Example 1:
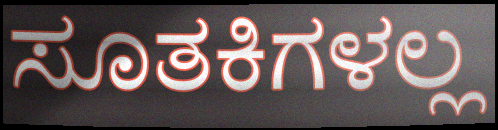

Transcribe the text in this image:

ಸೂತಕಿಗಳಲ್ಲ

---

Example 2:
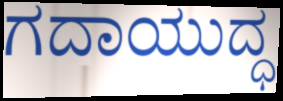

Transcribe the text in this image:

ಗದಾಯುದ್ಧ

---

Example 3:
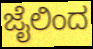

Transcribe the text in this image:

ಜೈಲಿಂದ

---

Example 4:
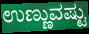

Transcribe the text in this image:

ಉಣ್ಣುವಷ್ಟು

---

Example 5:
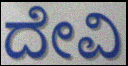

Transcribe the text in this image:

ದೇವಿ